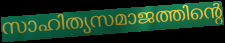
സാഹിത്യസമാജത്തിന്റെ